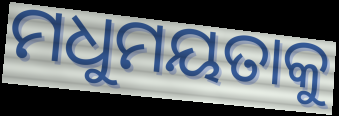
ମଧୁମୟତାକୁ